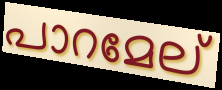
പാറമേല്